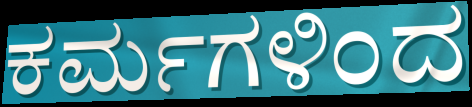
ಕರ್ಮಗಳಿಂದ